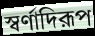
স্বর্ণাদিরূপ